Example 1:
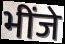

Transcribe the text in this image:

भींजे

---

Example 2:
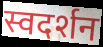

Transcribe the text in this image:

स्वदर्शन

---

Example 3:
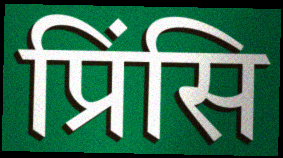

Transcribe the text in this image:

प्रिंसि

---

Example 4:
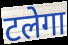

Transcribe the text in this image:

टलेगा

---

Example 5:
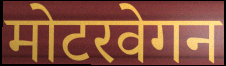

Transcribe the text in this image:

मोटरवेगन